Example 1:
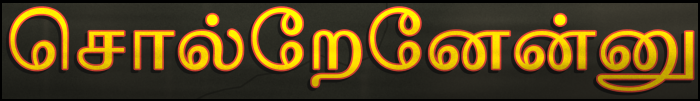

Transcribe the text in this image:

சொல்றேனேன்னு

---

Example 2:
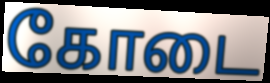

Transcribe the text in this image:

கோடை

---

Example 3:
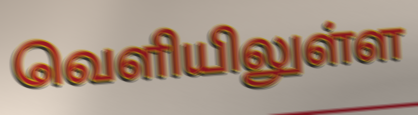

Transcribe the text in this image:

வெளியிலுள்ள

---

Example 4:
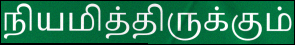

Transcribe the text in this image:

நியமித்திருக்கும்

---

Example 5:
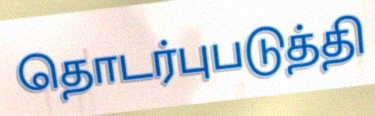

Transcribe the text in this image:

தொடர்புபடுத்தி